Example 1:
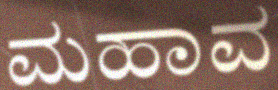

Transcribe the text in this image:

ಮಹಾವ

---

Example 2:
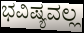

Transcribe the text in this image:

ಭವಿಷ್ಯವಲ್ಲ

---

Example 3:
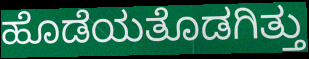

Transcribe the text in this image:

ಹೊಡೆಯತೊಡಗಿತ್ತು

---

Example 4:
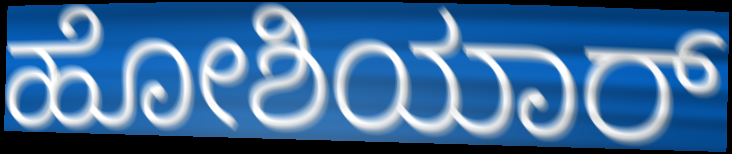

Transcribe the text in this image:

ಹೋಶಿಯಾರ್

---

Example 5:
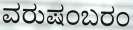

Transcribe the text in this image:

ವರುಷಂಬರಂ